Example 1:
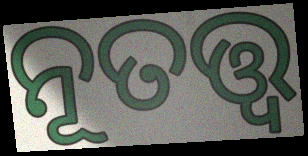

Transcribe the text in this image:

ନୂତତ୍ତ୍ଵ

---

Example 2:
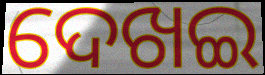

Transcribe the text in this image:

ଦେଖଇ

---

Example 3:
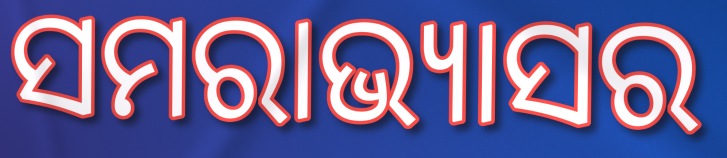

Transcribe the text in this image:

ସମରାଭ୍ୟାସର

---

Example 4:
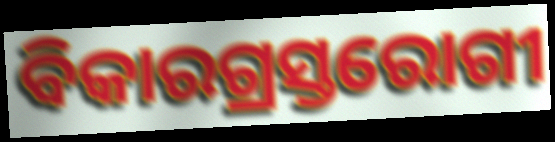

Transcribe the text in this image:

ବିକାରଗ୍ରସ୍ତରୋଗୀ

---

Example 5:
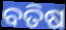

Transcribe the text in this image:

ବତିଷ